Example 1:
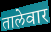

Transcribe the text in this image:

तालेवार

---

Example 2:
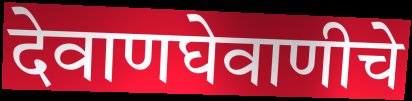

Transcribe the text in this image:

देवाणघेवाणीचे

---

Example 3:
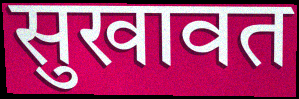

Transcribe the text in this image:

सुखावत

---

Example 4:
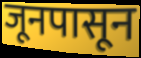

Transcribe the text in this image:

जूनपासून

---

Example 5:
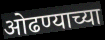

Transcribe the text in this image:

ओढण्याच्या